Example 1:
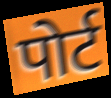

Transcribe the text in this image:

पोर्ट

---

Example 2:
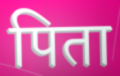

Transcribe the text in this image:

पिता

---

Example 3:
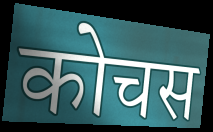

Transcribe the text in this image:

कोचस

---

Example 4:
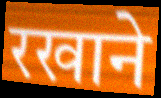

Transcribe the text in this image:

रखाने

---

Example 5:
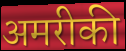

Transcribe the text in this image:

अमरीकी